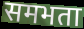
समभता